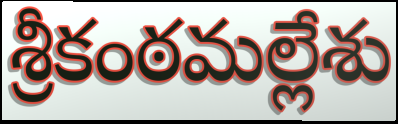
శ్రీకంఠమల్లేశు